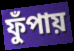
ফুঁপায়